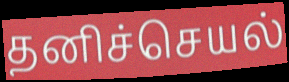
தனிச்செயல்